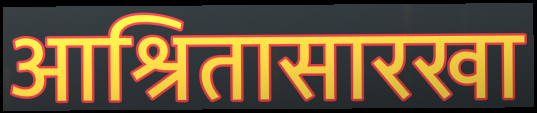
आश्रितासारखा